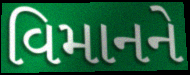
વિમાનને